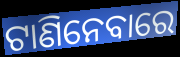
ଟାଣିନେବାରେ